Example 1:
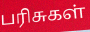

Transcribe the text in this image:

பரிசுகள்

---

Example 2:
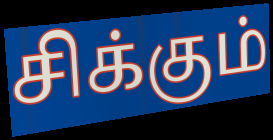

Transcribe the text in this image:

சிக்கும்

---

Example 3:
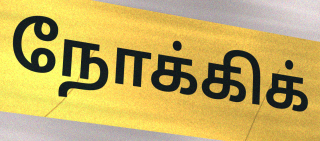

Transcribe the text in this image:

நோக்கிக்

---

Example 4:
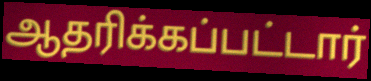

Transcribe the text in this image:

ஆதரிக்கப்பட்டார்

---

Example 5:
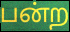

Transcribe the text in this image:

பன்ற